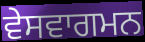
ਵੇਸਵਾਗਮਨ